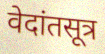
वेदांतसूत्र